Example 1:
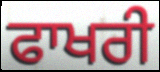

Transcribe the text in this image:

ਫਾਖਰੀ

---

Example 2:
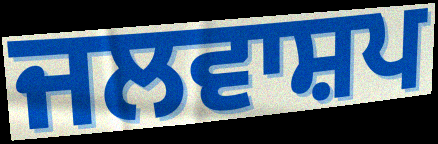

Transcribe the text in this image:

ਜਲਵਾਸ਼ਪ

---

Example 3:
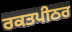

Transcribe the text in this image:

ਰਕਤਪੀਠਰ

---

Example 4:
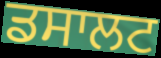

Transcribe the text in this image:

ਡਸਾਲਟ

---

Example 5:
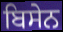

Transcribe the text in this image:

ਬਿਸੇਨ